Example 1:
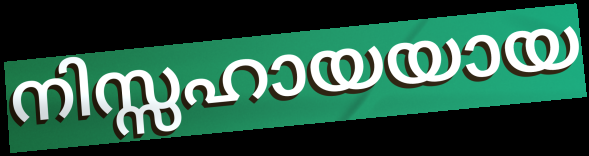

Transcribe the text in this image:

നിസ്സഹായയായ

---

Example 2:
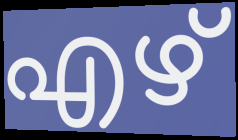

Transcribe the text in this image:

എഴ്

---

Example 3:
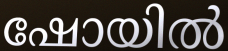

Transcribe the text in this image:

ഷോയിൽ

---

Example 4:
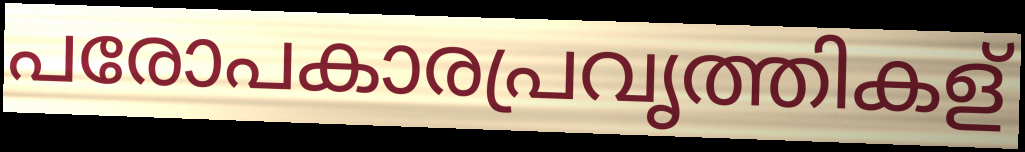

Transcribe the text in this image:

പരോപകാരപ്രവൃത്തികള്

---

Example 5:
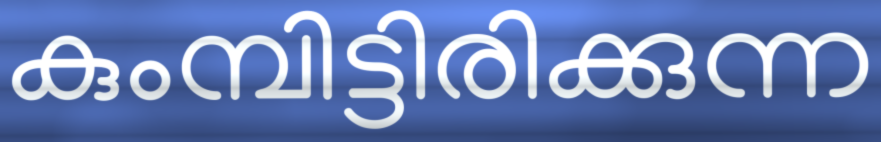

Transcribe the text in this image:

കുംമ്പിട്ടിരിക്കുന്ന